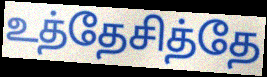
உத்தேசித்தே